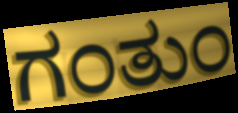
ಗಂತುಂ